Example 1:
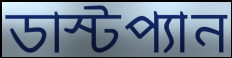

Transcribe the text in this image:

ডাস্টপ্যান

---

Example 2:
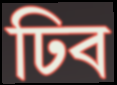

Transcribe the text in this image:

ঢিব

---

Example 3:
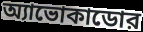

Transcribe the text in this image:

অ্যাভোকাডোর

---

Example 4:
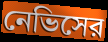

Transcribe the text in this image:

নেভিসের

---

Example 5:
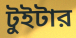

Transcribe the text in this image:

টুইটার